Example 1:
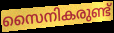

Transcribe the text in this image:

സൈനികരുണ്ട്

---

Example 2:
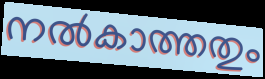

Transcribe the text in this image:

നൽകാത്തതും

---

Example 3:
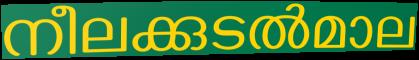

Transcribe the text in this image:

നീലക്കുടൽമാല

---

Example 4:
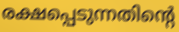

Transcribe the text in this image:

രക്ഷപ്പെടുന്നതിന്റെ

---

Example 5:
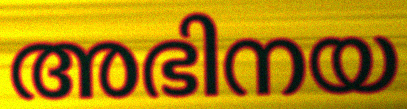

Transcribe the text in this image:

അഭിനയ